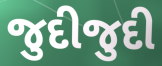
જુદીજુદી